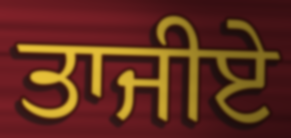
ਤਾਜੀਏ